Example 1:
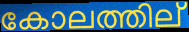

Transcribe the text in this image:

കോലത്തില്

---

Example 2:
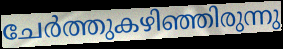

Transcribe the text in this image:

ചേർത്തുകഴിഞ്ഞിരുന്നു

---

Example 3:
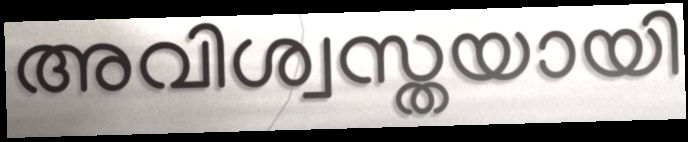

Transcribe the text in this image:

അവിശ്വസ്തയായി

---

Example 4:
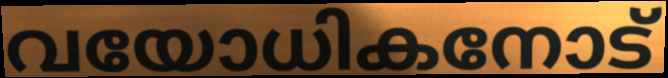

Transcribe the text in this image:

വയോധികനോട്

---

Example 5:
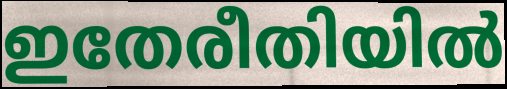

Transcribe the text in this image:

ഇതേരീതിയിൽ